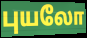
புயலோ